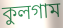
কুলগাম